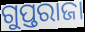
ଗୁପ୍ତରାଜା